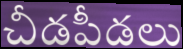
చీడపీడలు